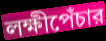
লক্ষীপেঁচার